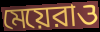
মেয়েরাও